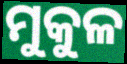
ମୁକୁଳ